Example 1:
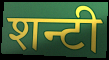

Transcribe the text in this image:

शन्टी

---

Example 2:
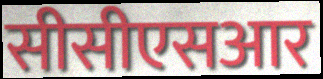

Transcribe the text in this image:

सीसीएसआर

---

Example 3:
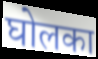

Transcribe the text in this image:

घोलका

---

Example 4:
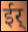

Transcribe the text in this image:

ईर्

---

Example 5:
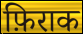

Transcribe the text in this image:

फ़िराक